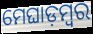
ମେଘାଡ଼ମ୍ବର